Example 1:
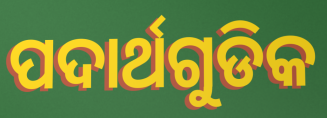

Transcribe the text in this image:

ପଦାର୍ଥଗୁଡିକ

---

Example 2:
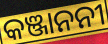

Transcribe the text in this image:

କଞ୍ଜାନନୀ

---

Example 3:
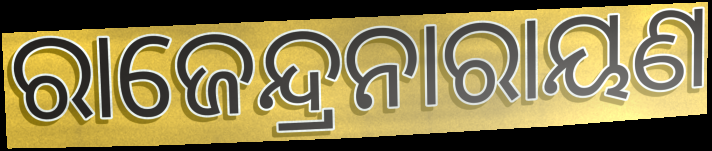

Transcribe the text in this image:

ରାଜେନ୍ଦ୍ରନାରାୟଣ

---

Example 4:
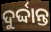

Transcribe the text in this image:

ଦୁର୍ଦ୍ଦାନ୍ତ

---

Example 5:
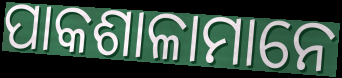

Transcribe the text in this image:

ପାକଶାଳାମାନେ